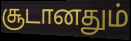
சூடானதும்